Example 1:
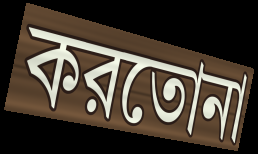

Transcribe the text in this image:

করতোনা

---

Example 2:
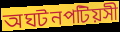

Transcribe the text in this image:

অঘটনপটিয়সী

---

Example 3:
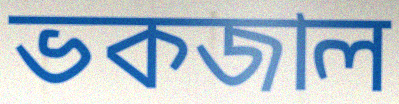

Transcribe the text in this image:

ভকজাল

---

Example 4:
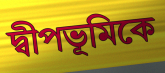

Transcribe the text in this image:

দ্বীপভূমিকে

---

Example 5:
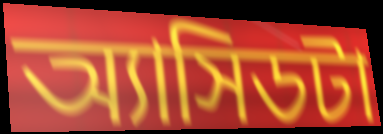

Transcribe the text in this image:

অ্যাসিডটা